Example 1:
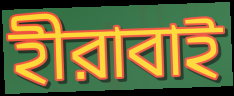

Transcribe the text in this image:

হীরাবাই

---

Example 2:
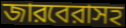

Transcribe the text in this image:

জারবেরাসহ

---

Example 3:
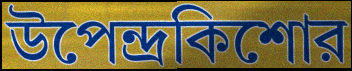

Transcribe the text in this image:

উপেন্দ্রকিশোর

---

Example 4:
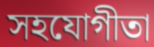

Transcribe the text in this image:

সহযোগীতা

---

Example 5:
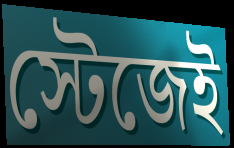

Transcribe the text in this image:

স্টেজেই